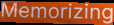
Memorizing